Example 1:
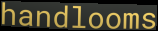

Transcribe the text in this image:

handlooms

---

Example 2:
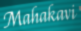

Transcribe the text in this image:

Mahakavi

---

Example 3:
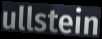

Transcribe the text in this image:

ullstein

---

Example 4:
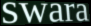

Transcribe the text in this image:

swara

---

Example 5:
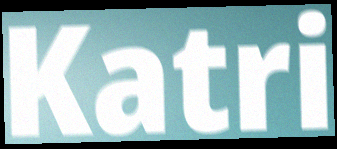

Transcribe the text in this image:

Katri